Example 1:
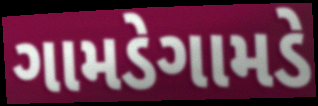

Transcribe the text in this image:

ગામડેગામડે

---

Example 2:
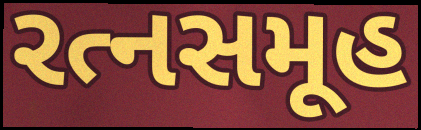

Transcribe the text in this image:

રત્નસમૂહ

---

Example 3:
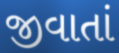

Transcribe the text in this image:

જીવાતાં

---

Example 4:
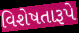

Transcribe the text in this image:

વિશેષતારૂપે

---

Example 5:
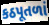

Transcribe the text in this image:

કઠપૂતળાં